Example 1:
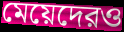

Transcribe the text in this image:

মেয়েদেরও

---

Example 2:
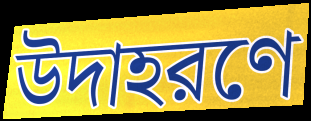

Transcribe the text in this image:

উদাহরণে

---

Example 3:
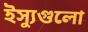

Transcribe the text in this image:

ইস্যুগুলো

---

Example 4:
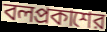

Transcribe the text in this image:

বলপ্রকাশের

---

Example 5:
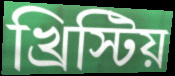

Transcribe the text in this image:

খ্রিস্টিয়